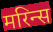
मरिन्स